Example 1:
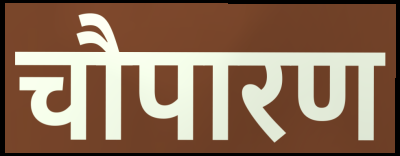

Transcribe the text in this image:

चौपारण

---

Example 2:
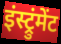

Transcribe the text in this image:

इंस्ट्रुंमेंट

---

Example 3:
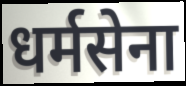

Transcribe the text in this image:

धर्मसेना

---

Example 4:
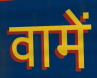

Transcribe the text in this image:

वामें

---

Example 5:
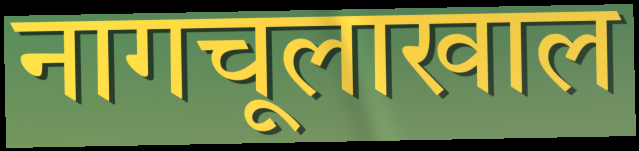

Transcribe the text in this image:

नागचूलाखाल